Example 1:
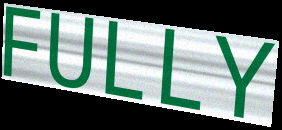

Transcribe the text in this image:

FULLY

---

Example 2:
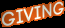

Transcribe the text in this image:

GIVING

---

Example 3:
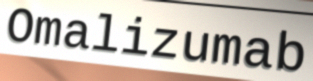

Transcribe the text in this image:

Omalizumab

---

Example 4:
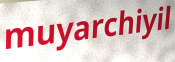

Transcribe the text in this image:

muyarchiyil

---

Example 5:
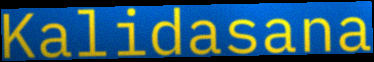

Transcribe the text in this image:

Kalidasana